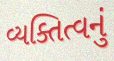
વ્યક્તિત્વનું